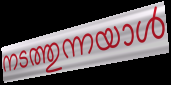
നടത്തുന്നയാൾ